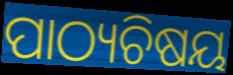
ପାଠ୍ୟଚିଷୟ